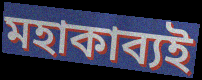
মহাকাব্যই